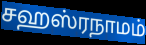
சஹஸ்ரநாமம்